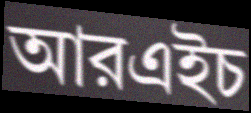
আরএইচ